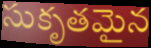
సుకృతమైన